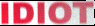
IDIOT